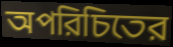
অপরিচিতের